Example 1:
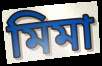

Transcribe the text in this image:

মিমা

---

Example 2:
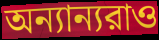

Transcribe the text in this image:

অন্যান্যরাও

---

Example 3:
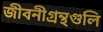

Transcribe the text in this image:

জীবনীগ্রন্থগুলি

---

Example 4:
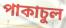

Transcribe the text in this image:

পাকাচুল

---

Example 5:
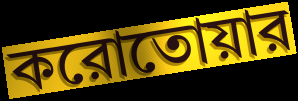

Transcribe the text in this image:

করোতোয়ার